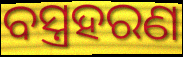
ବସ୍ତ୍ରହରଣ